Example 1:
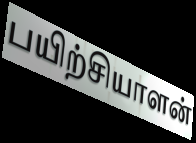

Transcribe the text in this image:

பயிற்சியாளன்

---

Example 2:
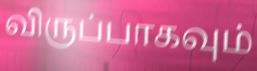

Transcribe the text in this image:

விருப்பாகவும்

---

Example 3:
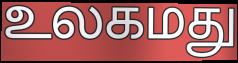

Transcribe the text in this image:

உலகமது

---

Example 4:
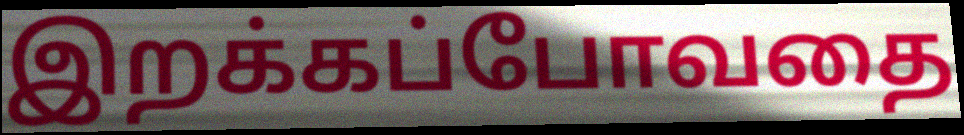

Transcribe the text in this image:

இறக்கப்போவதை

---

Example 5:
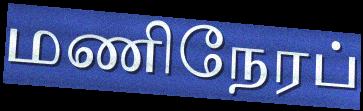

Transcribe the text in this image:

மணிநேரப்